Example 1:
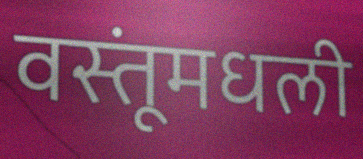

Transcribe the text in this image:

वस्तूंमधली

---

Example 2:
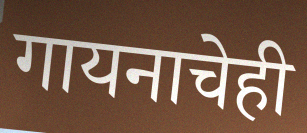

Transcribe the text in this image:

गायनाचेही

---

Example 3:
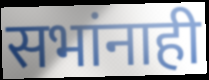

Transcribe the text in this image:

सभांनाही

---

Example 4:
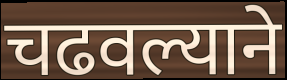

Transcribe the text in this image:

चढवल्याने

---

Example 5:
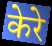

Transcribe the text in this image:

केरे